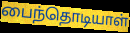
பைந்தொடியாள்